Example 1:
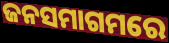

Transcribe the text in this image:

ଜନସମାଗମରେ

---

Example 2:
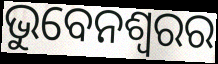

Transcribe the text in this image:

ଭୁବେନଶ୍ବରର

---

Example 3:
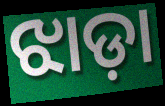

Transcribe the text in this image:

ଝାଡ଼ା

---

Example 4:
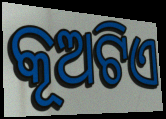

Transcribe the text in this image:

କୂଅଟିଏ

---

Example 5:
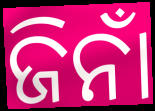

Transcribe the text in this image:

ଜିନାଁ